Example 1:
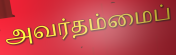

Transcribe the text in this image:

அவர்தம்மைப்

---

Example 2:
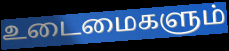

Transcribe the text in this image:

உடைமைகளும்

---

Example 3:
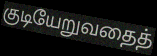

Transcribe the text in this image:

குடியேறுவதைத்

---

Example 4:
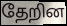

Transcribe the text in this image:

தேறின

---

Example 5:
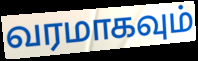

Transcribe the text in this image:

வரமாகவும்